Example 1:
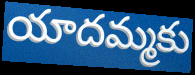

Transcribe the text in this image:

యాదమ్మకు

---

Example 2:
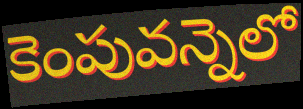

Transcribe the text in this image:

కెంపువన్నెలో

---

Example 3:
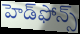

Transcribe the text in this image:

హెడ్‌ఫోన్స్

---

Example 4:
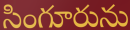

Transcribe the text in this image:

సింగూరును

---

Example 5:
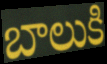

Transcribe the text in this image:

బాలుకి